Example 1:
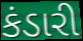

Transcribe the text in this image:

કંડારી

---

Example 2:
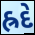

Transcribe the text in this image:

હ્રદે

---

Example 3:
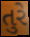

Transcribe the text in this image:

તુરે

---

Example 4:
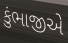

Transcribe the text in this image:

કુંભાજીએ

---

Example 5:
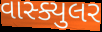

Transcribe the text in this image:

વાસ્ક્યુલર